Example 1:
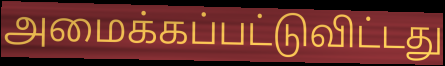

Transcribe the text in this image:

அமைக்கப்பட்டுவிட்டது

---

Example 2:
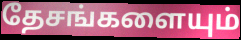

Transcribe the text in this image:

தேசங்களையும்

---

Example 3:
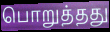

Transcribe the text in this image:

பொறுத்தது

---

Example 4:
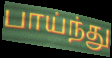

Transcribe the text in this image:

பாய்ந்து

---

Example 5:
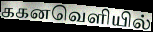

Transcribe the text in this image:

ககனவெளியில்